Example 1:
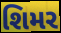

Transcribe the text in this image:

શિમર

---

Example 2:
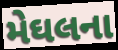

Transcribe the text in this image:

મેઘલના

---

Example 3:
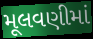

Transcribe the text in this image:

મૂલવણીમાં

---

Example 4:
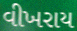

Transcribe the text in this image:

વીખરાય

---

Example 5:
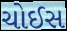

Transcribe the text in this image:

ચોઈસ